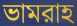
ভামরাহ